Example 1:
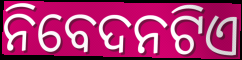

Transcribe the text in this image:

ନିବେଦନଟିଏ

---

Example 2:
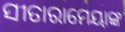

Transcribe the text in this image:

ସୀତାରାମେୟାଙ୍କ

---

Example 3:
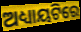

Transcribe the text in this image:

ଅଧ୍ୟାୟଟିରେ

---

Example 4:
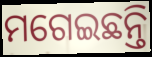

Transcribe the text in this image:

ମଗେଇଛନ୍ତି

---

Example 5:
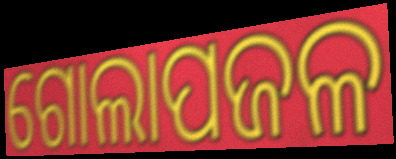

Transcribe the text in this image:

ଗୋଲାପଜଳ